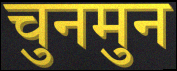
चुनमुन